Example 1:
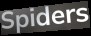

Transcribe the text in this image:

Spiders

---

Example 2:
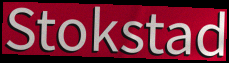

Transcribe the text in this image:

Stokstad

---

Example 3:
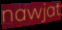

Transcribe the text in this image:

nawjat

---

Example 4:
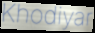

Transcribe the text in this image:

Khodiyar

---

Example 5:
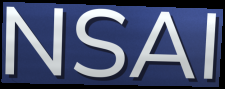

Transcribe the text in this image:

NSAI